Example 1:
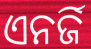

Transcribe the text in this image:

ଏନର୍ଜି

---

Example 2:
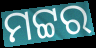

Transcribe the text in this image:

ମଟ୍ଟର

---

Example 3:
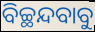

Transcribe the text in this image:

ବିଚ୍ଛନ୍ଦବାବୁ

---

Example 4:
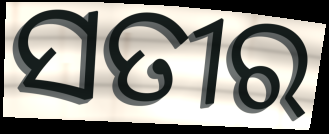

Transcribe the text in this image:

ସତୀର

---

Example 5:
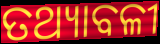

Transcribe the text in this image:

ତଥ୍ୟାବଳୀ